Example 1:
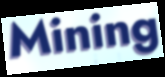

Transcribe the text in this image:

Mining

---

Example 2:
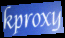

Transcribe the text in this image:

kproxy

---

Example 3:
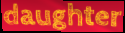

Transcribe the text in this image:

daughter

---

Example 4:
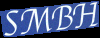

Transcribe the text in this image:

SMBH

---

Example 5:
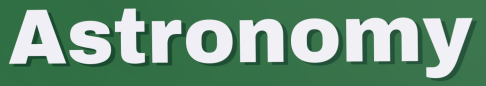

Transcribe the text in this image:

Astronomy